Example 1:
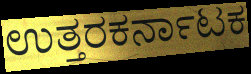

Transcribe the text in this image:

ಉತ್ತರಕರ್ನಾಟಕ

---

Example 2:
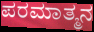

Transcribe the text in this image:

ಪರಮಾತ್ಮನ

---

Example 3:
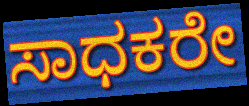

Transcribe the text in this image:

ಸಾಧಕರೇ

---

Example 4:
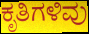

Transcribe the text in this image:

ಕೃತಿಗಳಿವು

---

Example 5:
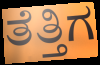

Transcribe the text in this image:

ತೆತ್ತಿಗ